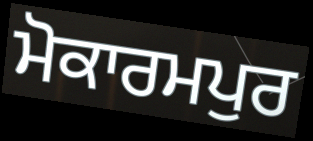
ਮੋਕਾਰਮਪੁਰ